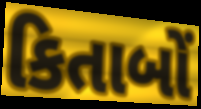
કિતાબોં